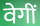
वेगीं